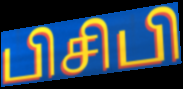
பிசிபி